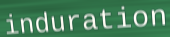
induration